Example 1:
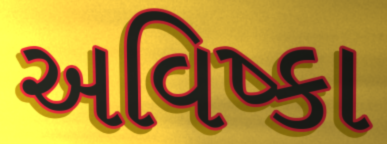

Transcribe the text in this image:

અવિષ્કા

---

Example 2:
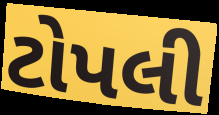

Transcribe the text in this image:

ટોપલી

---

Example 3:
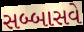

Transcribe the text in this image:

સબ્બાસવે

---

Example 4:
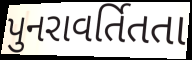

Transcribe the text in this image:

પુનરાવર્તિતતા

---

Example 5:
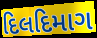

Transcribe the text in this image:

દિલદિમાગ